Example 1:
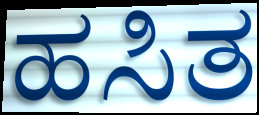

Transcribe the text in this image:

ಹಸಿತ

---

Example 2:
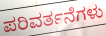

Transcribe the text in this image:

ಪರಿವರ್ತನೆಗಳು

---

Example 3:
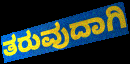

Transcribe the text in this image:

ತರುವುದಾಗಿ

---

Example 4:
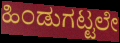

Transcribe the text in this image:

ಹಿಂಡುಗಟ್ಟಲೇ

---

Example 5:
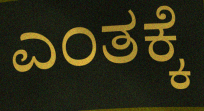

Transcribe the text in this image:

ಎಂತಕ್ಕೆ